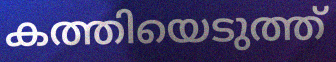
കത്തിയെടുത്ത്